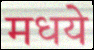
मधये